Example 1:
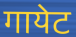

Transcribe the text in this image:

गायेट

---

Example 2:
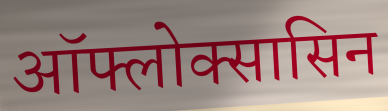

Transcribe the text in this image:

ऑफ्लोक्सासिन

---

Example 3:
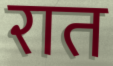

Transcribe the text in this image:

रात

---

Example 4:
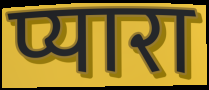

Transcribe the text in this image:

प्यारा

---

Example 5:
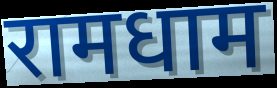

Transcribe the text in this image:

रामधाम